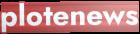
plotenews